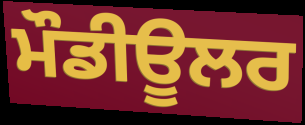
ਮੌਡੀਊਲਰ